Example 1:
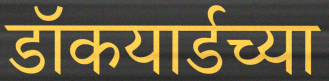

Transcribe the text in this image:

डॉकयार्डच्या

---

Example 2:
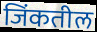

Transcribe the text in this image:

जिंकतील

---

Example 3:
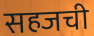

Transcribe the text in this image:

सहजची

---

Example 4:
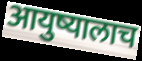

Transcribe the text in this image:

आयुष्यालाच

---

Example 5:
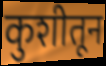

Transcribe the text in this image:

कुशीतून